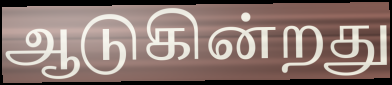
ஆடுகின்றது